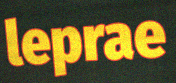
leprae